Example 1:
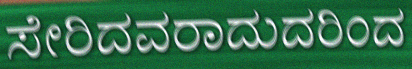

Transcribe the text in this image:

ಸೇರಿದವರಾದುದರಿಂದ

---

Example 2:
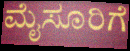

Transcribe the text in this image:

ಮೈಸೂರಿಗೆ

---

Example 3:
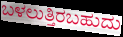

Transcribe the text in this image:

ಬಳಲುತ್ತಿರಬಹುದು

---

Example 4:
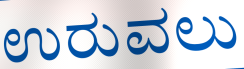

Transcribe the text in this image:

ಉರುವಲು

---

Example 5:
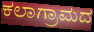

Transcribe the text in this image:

ಕಲಾಗ್ರಾಮದ